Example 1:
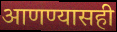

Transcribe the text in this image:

आणण्यासही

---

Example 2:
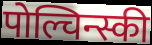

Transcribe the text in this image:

पोल्चिन्स्की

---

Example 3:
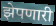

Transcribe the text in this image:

झेपणारी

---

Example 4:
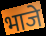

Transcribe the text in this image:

भाजे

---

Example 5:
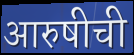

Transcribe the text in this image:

आरुषीची